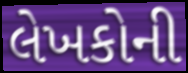
લેખકોની